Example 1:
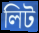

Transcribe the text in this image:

লিট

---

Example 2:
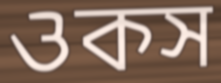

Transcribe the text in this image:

ওকস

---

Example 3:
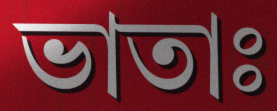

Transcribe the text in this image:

ভাতাঃ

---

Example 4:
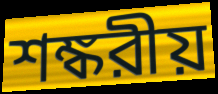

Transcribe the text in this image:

শঙ্করীয়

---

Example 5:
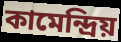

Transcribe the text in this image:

কামেন্দ্রিয়